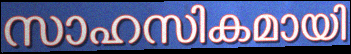
സാഹസികമായി